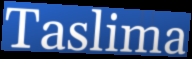
Taslima